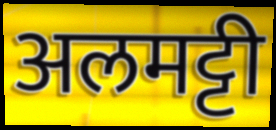
अलमट्टी